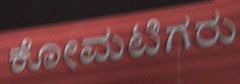
ಕೋಮಟಿಗರು